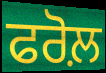
ਫਰੋਲ਼